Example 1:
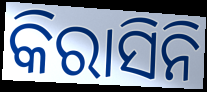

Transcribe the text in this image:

କିରାସିନି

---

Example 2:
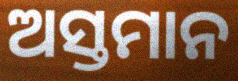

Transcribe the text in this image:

ଅସ୍ତମାନ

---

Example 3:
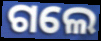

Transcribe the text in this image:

ଗଲେ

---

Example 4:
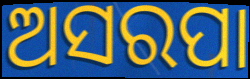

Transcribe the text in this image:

ଅସରପା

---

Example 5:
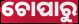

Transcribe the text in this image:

ଚୋପାରୁ